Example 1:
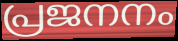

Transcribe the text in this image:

പ്രജനനം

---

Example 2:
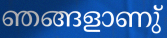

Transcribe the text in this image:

ഞങ്ങളാണു്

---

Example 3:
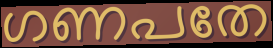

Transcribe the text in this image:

ഗണപതേ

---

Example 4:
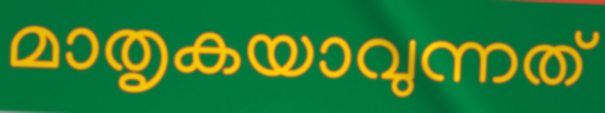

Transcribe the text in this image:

മാതൃകയാവുന്നത്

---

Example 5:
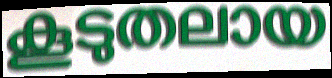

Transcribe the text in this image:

കൂടുതലായ